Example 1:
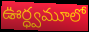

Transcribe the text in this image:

ఊర్ధ్వమూలో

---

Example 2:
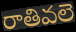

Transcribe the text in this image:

రాతివలె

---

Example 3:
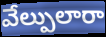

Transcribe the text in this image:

వేల్పులారా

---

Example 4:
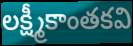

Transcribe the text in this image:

లక్ష్మీకాంతకవి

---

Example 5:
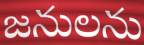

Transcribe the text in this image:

జనులను